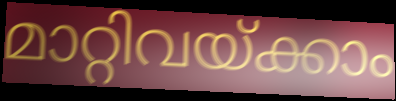
മാറ്റിവയ്ക്കാം